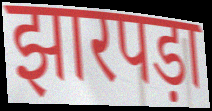
झारपड़ा